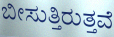
ಬೀಸುತ್ತಿರುತ್ತವೆ